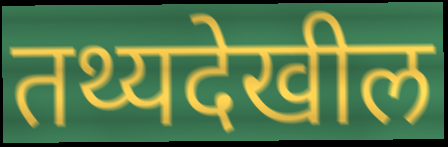
तथ्यदेखील